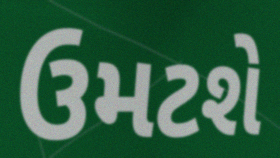
ઉમટશે